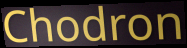
Chodron